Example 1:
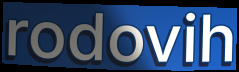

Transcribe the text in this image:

rodovih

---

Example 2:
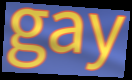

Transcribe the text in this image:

gay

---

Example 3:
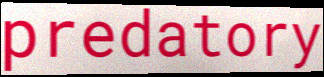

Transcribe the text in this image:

predatory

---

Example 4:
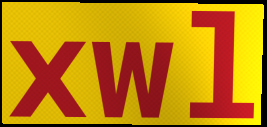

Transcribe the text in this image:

xwl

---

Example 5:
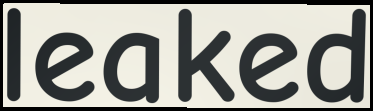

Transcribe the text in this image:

leaked